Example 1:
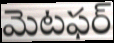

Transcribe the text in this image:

మెటఫర్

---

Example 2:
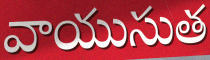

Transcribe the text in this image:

వాయుసుత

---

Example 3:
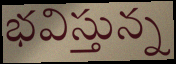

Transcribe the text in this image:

భవిస్తున్న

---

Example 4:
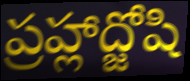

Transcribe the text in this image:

ప్రహ్లాద్జోషి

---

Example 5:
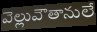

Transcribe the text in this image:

వెల్లువౌతానులే